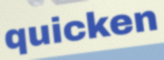
quicken